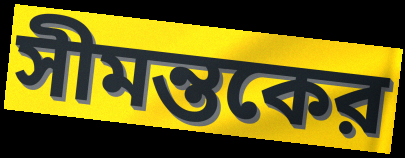
সীমন্তকের